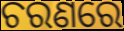
ଚରଣରେ